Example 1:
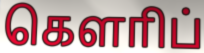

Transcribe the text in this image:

கௌரிப்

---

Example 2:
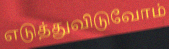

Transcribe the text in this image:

எடுத்துவிடுவோம்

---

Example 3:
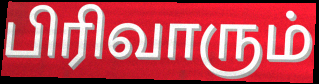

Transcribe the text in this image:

பிரிவாரும்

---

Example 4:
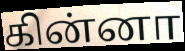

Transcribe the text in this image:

கின்னா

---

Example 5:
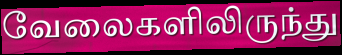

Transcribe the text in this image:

வேலைகளிலிருந்து